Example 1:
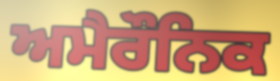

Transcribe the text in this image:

ਅਮੈਰੌਨਿਕ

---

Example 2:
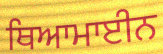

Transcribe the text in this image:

ਥਿਆਮਾਈਨ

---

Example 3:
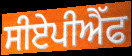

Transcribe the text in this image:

ਸੀਏਪੀਐੱਫ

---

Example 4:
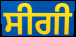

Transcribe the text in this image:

ਸੀਗੀ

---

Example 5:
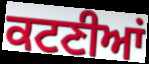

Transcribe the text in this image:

ਕਟਣੀਆਂ